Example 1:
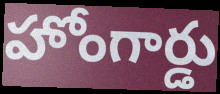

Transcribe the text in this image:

హోంగార్డు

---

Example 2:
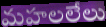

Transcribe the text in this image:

మహలలేలు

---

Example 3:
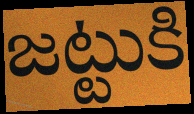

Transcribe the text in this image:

జట్టుకి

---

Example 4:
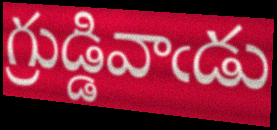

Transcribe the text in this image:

గ్రుడ్డివాఁడు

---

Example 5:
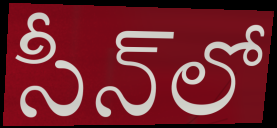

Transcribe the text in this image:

సీన్‌లో